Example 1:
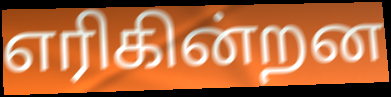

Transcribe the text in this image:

எரிகின்றன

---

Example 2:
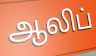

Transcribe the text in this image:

ஆலிப்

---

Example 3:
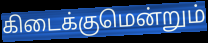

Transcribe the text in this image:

கிடைக்குமென்றும்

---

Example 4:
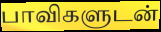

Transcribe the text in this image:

பாவிகளுடன்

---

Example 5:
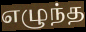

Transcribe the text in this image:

எழுந்த